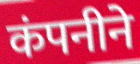
कंपनीने